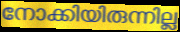
നോക്കിയിരുന്നില്ല